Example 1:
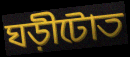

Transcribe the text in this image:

ঘড়ীটোত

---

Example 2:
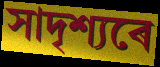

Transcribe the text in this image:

সাদৃশ্যৰে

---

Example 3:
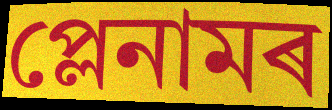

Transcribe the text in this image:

প্লেনামৰ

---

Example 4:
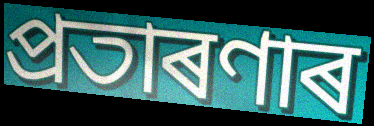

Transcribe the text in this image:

প্ৰতাৰণাৰ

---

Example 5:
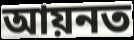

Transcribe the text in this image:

আয়নত